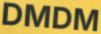
DMDM